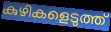
കുഴികളെടുത്ത്